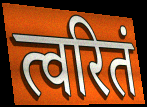
त्वरितं